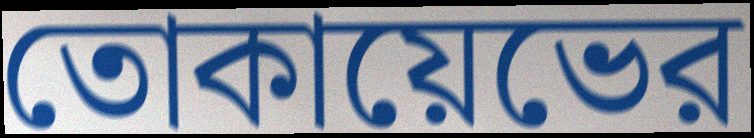
তোকায়েভের